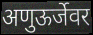
अणुऊर्जेवर